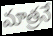
మాత్రనే